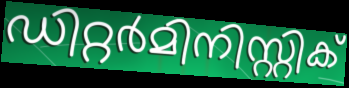
ഡിറ്റർമിനിസ്റ്റിക്